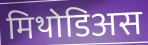
मिथोडिअस